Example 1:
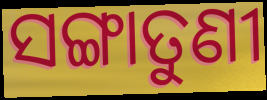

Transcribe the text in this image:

ସଙ୍ଗାତୁଣୀ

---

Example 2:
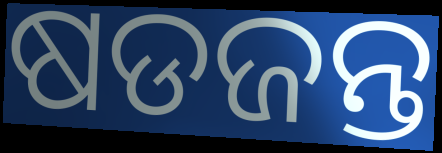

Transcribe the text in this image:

ଷଡଜନ୍ତ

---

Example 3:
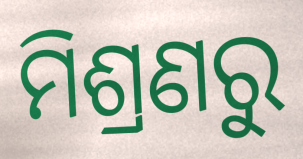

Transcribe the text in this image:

ମିଶ୍ରଣରୁ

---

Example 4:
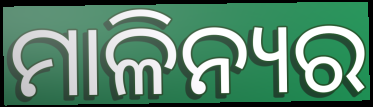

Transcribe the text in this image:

ମାଳିନ୍ୟର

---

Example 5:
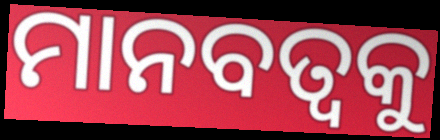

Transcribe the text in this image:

ମାନବତ୍ବକୁ